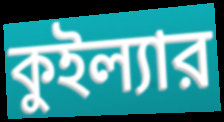
কুইল্যার